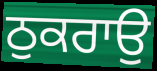
ਠੁਕਰਾਉ